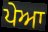
ਪੇਆ